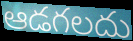
ఆడగలదు